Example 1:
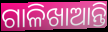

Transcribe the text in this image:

ଗାଳିଖାଆନ୍ତି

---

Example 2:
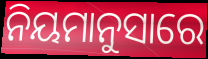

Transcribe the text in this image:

ନିୟମାନୁସାରେ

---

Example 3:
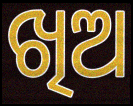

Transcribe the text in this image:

ଖିଅ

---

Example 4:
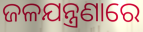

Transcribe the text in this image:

ଜଳଯନ୍ତ୍ରଣାରେ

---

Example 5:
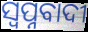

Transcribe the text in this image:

ସ୍ୱପ୍ନବାଦୀ